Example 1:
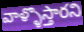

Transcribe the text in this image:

వాళ్ళొస్తారని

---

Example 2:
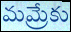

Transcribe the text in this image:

మమ్రేకు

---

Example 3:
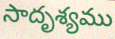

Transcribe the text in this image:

సాదృశ్యము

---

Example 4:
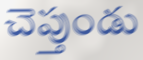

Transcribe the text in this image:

చెప్తుండు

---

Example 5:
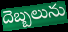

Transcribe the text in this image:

దెబ్బలును